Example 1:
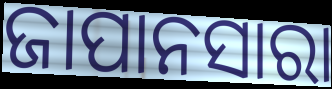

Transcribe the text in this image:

ଜାପାନସାରା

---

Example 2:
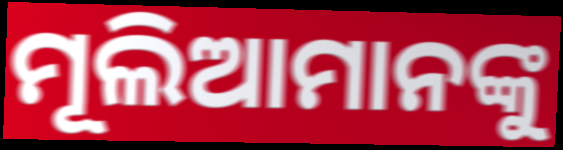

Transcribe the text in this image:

ମୂଲିଆମାନଙ୍କୁ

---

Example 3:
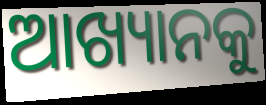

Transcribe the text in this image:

ଆଖ୍ୟାନକୁ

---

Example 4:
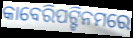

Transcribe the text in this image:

କାବେରିପଟ୍ଟିନମରେ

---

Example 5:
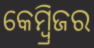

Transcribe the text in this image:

କେମ୍ୱ୍ରିଜର